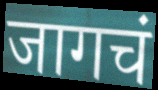
जागचं